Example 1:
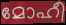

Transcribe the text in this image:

മോഹീ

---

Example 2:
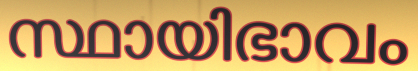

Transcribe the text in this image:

സ്ഥായിഭാവം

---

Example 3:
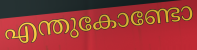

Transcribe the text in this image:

എന്തുകോണ്ടോ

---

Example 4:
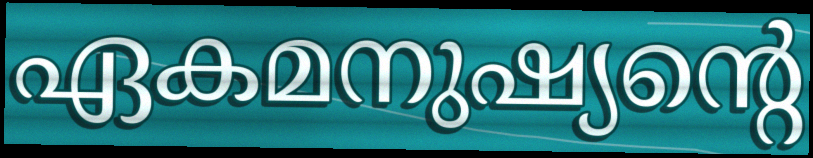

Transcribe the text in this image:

ഏകമനുഷ്യന്റെ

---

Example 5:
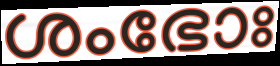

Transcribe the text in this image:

ശംഭോഃ